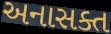
અનાસક્ત